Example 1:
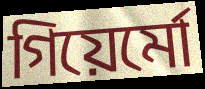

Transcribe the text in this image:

গিয়ের্মো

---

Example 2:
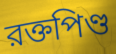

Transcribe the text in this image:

রক্তপিণ্ড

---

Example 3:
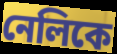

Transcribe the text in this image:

নেলিকে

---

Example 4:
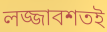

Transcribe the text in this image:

লজ্জাবশতই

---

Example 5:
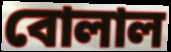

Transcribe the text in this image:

বোলাল